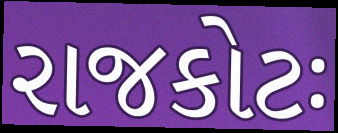
રાજકોટઃ